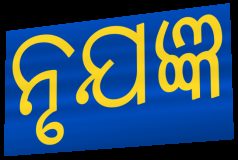
ନୃଯଜ୍ଞ